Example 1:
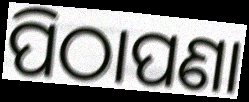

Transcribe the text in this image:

ପିଠାପଣା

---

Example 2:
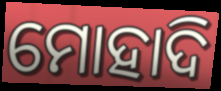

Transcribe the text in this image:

ମୋହାଦି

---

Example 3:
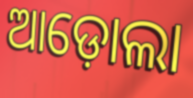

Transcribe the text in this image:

ଆଡ଼ୋଲା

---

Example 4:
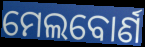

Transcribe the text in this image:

ମେଲବୋର୍ଣ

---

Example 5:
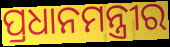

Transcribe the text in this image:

ପ୍ରଧାନମନ୍ତ୍ରୀର